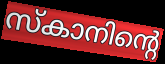
സ്കാനിന്റെ